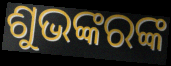
ଶୁଭଙ୍କରଙ୍କ